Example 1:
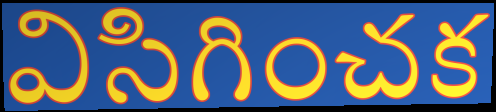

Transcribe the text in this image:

విసిగించక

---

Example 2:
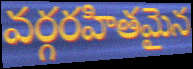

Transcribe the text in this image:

వర్గరహితమైన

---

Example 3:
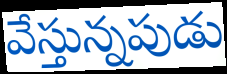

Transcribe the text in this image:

వేస్తున్నపుడు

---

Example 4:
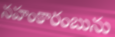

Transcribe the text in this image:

నహంకారంబును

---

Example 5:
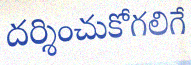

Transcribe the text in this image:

దర్శించుకోగలిగే